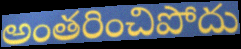
అంతరించిపోదు